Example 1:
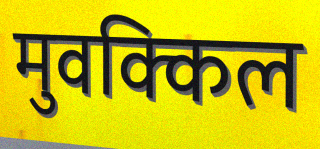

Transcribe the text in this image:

मुवक्किल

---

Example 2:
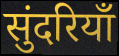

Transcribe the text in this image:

सुंदरियाँ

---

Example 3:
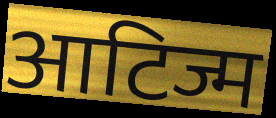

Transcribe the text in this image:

आटिज्म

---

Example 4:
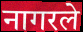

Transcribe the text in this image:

नागरले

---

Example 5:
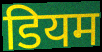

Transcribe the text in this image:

डियम